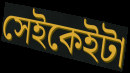
সেইকেইটা